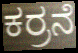
ಕರ್ರನೆ